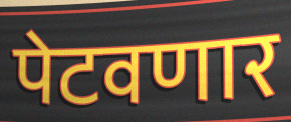
पेटवणार